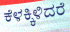
ಕೆಳಕ್ಕಿಳಿದರೆ